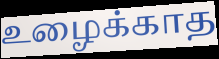
உழைக்காத